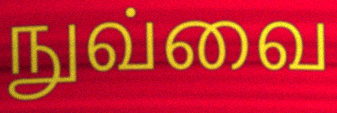
நுவ்வை